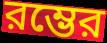
রম্ভের